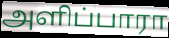
அளிப்பாரா